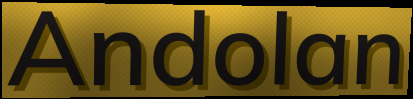
Andolan